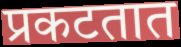
प्रकटतात